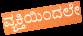
ವ್ಯಕ್ತಿಯಿಂದಲೇ